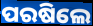
ପରଷିଲେ